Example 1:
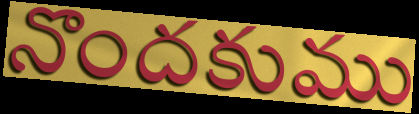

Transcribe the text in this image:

నొందకుము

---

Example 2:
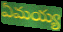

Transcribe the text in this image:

ఏమయ్య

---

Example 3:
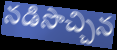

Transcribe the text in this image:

నడిసొచ్చిన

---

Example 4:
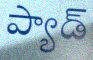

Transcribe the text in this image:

ప్యాడ్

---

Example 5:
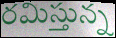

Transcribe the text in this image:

రమిస్తున్న